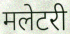
मलेटरी